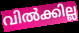
വിൽക്കില്ല